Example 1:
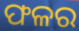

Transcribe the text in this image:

ଫଳର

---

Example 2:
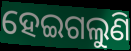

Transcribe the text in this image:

ହେଇଗଲୁଣି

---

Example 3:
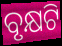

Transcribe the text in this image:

ବୃକ୍ଷଟି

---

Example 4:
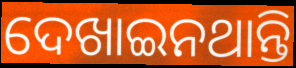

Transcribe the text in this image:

ଦେଖାଇନଥାନ୍ତି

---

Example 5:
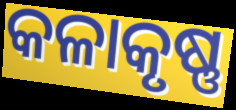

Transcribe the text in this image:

କଳାକୃଷ୍ଣ